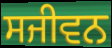
ਸਜੀਵਨ